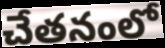
చేతనంలో